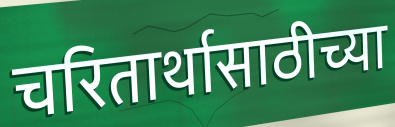
चरितार्थासाठीच्या